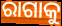
ରାଗାକୁ